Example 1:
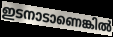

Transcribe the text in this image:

ഇടനാടാണെങ്കിൽ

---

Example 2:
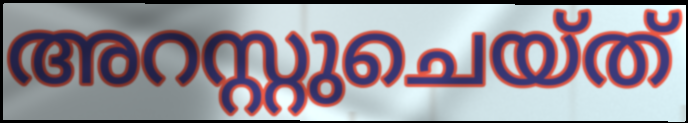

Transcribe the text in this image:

അറസ്റ്റുചെയ്ത്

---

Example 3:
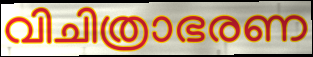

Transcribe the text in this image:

വിചിത്രാഭരണ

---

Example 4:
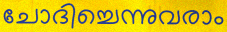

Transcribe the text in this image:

ചോദിച്ചെന്നുവരാം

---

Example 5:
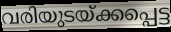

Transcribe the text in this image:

വരിയുടയ്ക്കപ്പെട്ട